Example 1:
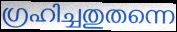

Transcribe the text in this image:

ഗ്രഹിച്ചതുതന്നെ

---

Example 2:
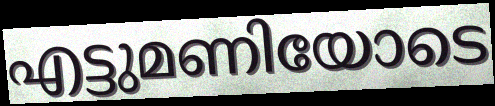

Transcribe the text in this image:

എട്ടുമണിയോടെ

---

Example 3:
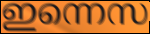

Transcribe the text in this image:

ഇന്നെസ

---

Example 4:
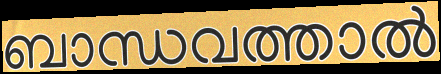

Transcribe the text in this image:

ബാന്ധവത്താൽ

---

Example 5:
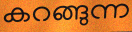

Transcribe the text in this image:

കറങ്ങുന്ന